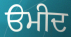
ੳਮੀਦ